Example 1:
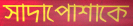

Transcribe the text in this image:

সাদাপোশাকে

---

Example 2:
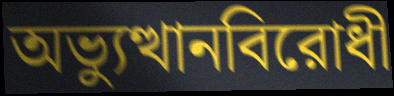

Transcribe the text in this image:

অভ্যুত্থানবিরোধী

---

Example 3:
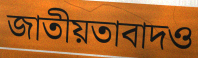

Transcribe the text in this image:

জাতীয়তাবাদও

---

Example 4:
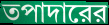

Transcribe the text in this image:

তপাদারের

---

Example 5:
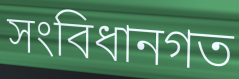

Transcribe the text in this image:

সংবিধানগত